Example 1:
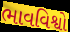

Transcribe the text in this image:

ભાવવિશ્વો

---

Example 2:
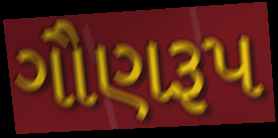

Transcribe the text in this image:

ગૌણરૂપ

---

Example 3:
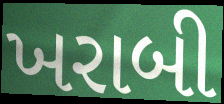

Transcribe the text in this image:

ખરાબી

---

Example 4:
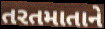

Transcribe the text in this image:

તરતમાતાને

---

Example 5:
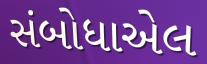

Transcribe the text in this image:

સંબોધાએલ